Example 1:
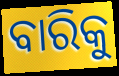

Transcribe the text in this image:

ବାରିକୁ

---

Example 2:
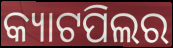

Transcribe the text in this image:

କ୍ୟାଟପିଲର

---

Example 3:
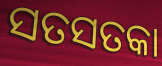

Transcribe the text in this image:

ସତସତକା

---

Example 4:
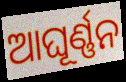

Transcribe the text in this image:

ଆଘୂର୍ଣ୍ଣନ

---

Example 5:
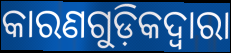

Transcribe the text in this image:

କାରଣଗୁଡ଼ିକଦ୍ବାରା